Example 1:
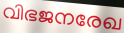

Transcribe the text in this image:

വിഭജനരേഖ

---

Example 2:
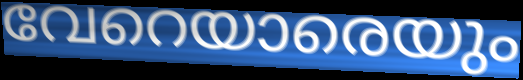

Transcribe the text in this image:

വേറെയാരെയും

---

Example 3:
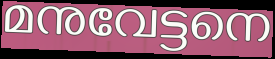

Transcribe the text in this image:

മനുവേട്ടനെ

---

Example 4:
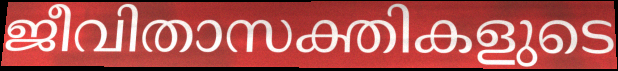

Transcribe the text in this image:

ജീവിതാസക്തികളുടെ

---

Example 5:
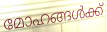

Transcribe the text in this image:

മോഹങ്ങൾക്ക്